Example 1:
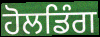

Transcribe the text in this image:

ਹੋਲਡਿੰਗ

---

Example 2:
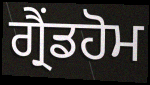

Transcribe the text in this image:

ਗ੍ਰੈਂਡਹੋਮ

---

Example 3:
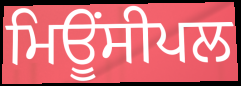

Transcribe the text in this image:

ਮਿਊਂਸੀਪਲ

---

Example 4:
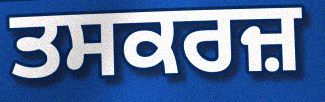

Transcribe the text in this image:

ਤਸਕਰਜ਼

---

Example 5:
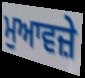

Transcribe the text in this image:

ਮੁਆਵਜ਼ੇ